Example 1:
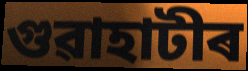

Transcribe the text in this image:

গুৱাহাটীৰ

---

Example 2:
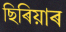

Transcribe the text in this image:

ছিৰিয়াৰ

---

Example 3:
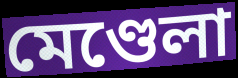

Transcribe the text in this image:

মেণ্ডেলা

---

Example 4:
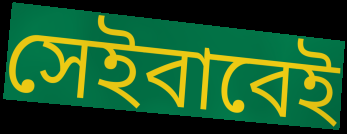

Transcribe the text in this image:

সেইবাবেই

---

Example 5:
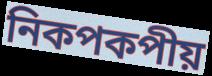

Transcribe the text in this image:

নিকপকপীয়